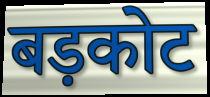
बड़कोट